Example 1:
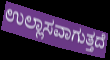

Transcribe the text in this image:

ಉಲ್ಲಾಸವಾಗುತ್ತದೆ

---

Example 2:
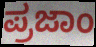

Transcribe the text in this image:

ಪ್ರಜಾಂ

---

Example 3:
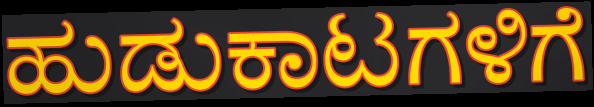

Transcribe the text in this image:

ಹುಡುಕಾಟಗಳಿಗೆ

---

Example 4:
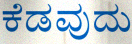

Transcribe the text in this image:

ಕೆಡವುದು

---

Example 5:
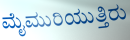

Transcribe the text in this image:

ಮೈಮುರಿಯುತ್ತಿರು